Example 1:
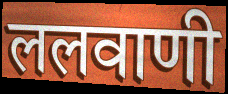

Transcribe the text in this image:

ललवाणी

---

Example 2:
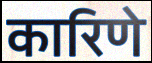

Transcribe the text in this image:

कारिणे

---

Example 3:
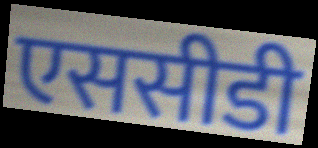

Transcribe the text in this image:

एससीडी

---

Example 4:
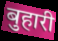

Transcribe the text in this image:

बुहारी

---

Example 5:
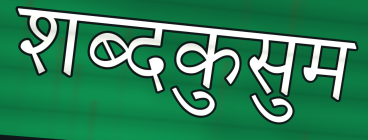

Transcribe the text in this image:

शब्दकुसुम